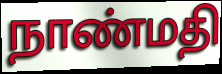
நாண்மதி